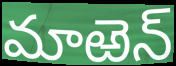
మాఱెన్